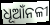
ଧୂଆଁନଳୀ